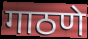
गाठणे